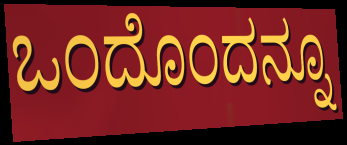
ಒಂದೊಂದನ್ನೂ